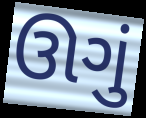
ઊગું